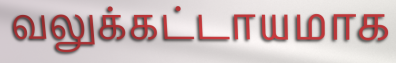
வலுக்கட்டாயமாக